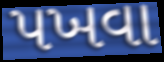
પખવા